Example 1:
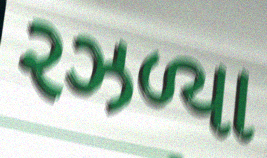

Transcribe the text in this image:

રઝળ્યા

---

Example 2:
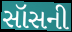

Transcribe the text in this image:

સૉસની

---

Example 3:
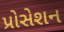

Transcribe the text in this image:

પ્રોસેશન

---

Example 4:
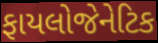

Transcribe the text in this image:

ફાયલોજેનેટિક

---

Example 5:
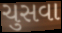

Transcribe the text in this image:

ચુસવા